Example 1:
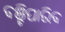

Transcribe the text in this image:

ବଞ୍ଚିପାରିବ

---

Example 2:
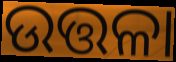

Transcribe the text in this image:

ଉତ୍ତଳା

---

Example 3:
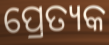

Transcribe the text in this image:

ପ୍ରେତ୍ୟକ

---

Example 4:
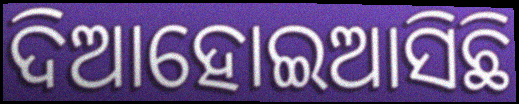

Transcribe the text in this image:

ଦିଆହୋଇଆସିଛି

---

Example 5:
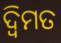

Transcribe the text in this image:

ଦ୍ୱିମତ